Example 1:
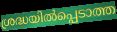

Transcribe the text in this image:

ശ്രദ്ധയിൽപ്പെടാത്ത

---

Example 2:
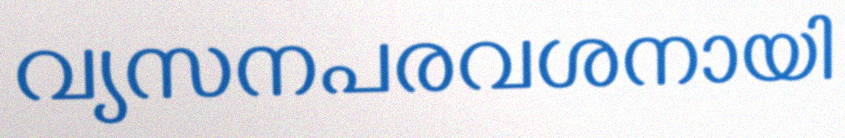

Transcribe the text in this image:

വ്യസനപരവശനായി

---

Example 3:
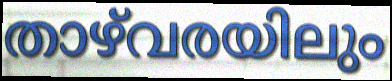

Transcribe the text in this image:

താഴ്‌വരയിലും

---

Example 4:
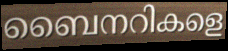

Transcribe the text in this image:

ബൈനറികളെ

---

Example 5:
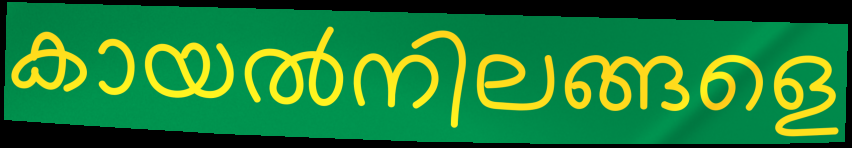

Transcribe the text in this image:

കായൽനിലങ്ങളെ